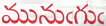
మునుఁగుఁ